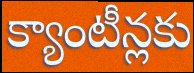
క్యాంటీన్లకు